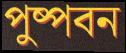
পুষ্পবন